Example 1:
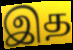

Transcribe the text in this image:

இத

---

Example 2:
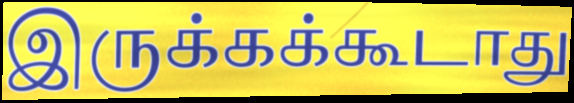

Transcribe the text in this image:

இருக்கக்கூடாது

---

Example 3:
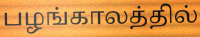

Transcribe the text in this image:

பழங்காலத்தில்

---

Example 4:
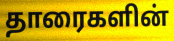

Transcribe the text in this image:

தாரைகளின்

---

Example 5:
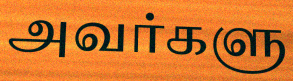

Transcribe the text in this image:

அவர்களு